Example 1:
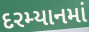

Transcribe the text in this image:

દરમ્યાનમાં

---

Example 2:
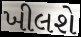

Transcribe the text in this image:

ખીલશે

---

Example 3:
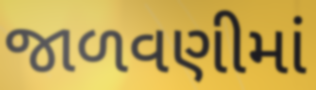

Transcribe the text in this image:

જાળવણીમાં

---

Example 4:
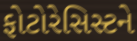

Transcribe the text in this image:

ફોટોરેસિસ્ટને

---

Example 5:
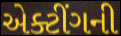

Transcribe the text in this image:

એક્ટીંગની